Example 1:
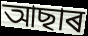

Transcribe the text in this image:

আছাৰ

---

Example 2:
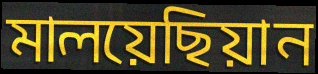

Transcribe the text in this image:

মালয়েছিয়ান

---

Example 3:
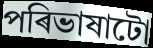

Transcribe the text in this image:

পৰিভাষাটো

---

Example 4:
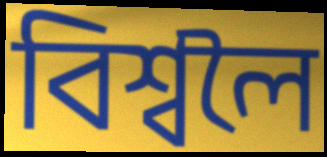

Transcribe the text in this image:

বিশ্বলৈ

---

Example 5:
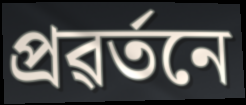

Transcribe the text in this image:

প্ৰৱৰ্তনে